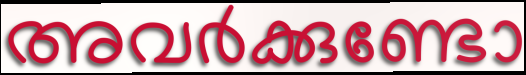
അവർക്കുണ്ടോ